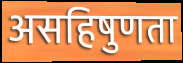
असहिषुणता